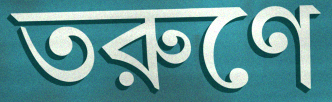
তরুণে